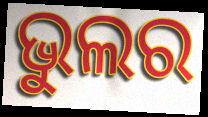
ଭୁଲର